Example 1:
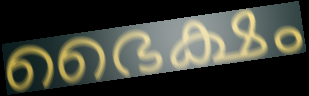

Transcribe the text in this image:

ഭൈക്ഷം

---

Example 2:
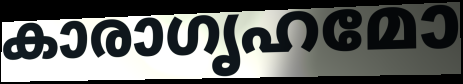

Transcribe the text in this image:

കാരാഗൃഹമോ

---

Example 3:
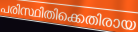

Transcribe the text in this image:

പരിസ്ഥിതിക്കെതിരായ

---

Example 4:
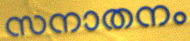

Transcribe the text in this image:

സനാതനം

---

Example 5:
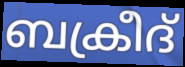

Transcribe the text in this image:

ബക്രീദ്